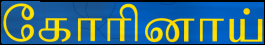
கோரினாய்